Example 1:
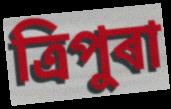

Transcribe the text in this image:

ত্ৰিপুৰা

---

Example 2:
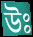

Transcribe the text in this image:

উঃ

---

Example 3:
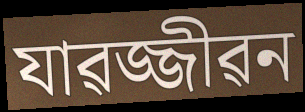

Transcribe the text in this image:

যাৱজ্জীৱন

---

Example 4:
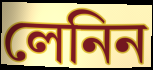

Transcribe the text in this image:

লেনিন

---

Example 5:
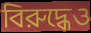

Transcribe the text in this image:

বিৰুদ্ধেও